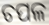
ଚପଳ